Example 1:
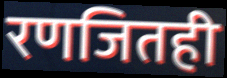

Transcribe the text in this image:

रणजितही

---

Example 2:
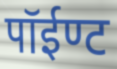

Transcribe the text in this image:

पॉईण्ट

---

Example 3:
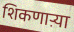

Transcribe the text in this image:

शिकणाऱ्‍या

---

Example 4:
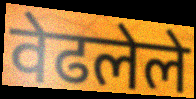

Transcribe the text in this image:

वेढलेले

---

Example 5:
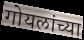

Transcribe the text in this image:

गोयलांच्या